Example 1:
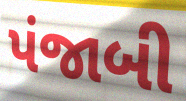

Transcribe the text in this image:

પંજાબી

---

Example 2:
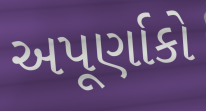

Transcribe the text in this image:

અપૂર્ણાકો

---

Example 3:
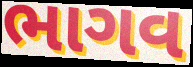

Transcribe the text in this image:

ભાગવ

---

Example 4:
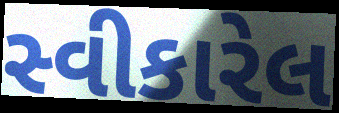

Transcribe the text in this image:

સ્વીકારેલ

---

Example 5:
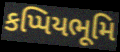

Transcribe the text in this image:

કપ્પિયભૂમિ